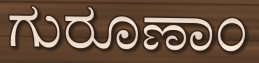
ಗುರೂಣಾಂ